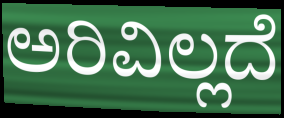
ಅರಿವಿಲ್ಲದೆ